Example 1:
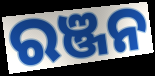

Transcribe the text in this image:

ରଞ୍ଜନ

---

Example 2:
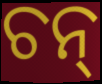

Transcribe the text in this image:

ଚନ୍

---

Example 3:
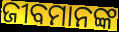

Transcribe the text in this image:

ଜୀବମାନଙ୍କ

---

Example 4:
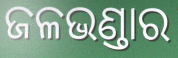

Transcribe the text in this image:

ଜଳଭଣ୍ଡାର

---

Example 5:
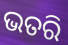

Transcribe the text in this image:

ଭତରି